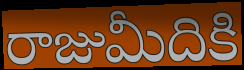
రాజుమీదికి